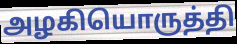
அழகியொருத்தி